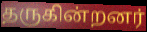
தருகின்றனர்